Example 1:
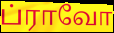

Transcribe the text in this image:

ப்ராவோ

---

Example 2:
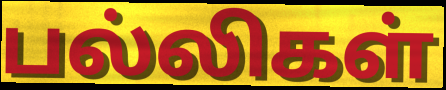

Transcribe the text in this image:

பல்லிகள்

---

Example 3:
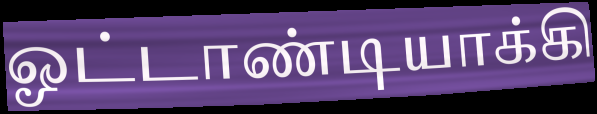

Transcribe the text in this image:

ஓட்டாண்டியாக்கி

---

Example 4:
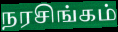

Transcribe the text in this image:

நரசிங்கம்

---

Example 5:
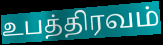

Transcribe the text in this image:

உபத்திரவம்